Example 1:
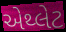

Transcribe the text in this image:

એથ્લેટ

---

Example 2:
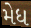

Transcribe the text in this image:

મેધ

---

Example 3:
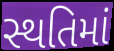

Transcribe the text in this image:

સ્થતિમાં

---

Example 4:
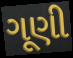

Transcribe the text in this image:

ગૂણી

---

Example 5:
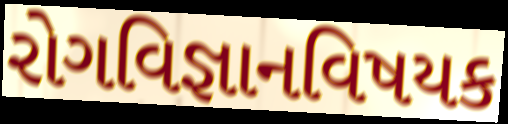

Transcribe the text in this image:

રોગવિજ્ઞાનવિષયક